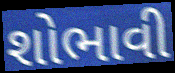
શોભાવી